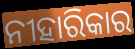
ନୀହାରିକାର